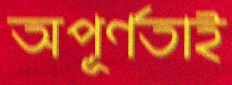
অপূর্ণতাই